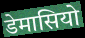
डेमासियो